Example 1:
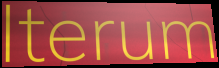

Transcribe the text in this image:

Iterum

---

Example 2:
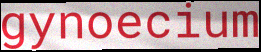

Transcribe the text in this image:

gynoecium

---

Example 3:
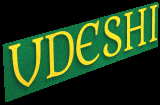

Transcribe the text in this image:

UDESHI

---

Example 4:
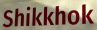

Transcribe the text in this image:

Shikkhok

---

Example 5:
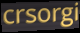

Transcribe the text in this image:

crsorgi